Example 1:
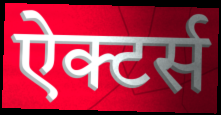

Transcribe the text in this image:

ऐक्‍टर्स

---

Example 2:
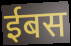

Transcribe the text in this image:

ईबस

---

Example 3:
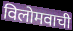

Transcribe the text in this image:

विलोमवाची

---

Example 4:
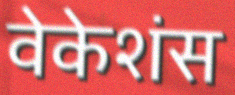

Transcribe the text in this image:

वेकेशंस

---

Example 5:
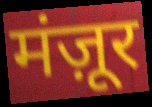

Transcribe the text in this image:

मंज़ूर